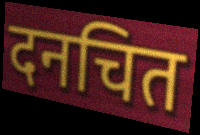
दनचित